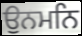
ਉਨਮਨਿ